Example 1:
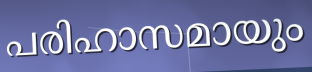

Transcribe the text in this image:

പരിഹാസമായും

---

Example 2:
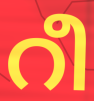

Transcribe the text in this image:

റീ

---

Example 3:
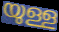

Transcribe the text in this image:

യുള്ള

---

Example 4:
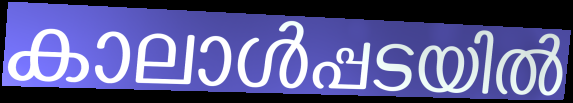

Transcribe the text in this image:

കാലാൾപ്പടയിൽ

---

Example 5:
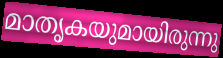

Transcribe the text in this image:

മാതൃകയുമായിരുന്നു